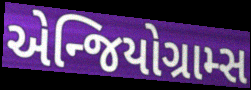
એન્જિયોગ્રામ્સ